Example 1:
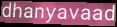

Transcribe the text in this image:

dhanyavaad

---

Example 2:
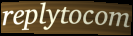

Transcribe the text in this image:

replytocom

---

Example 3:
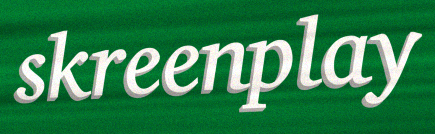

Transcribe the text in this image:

skreenplay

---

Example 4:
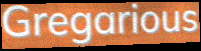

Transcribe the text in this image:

Gregarious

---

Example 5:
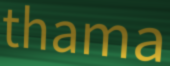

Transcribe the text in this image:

thama